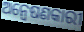
ଅନ୍ୱେଷଣକାରୀ